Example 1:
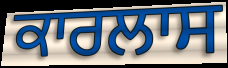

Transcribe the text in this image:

ਕਾਰਲਾਸ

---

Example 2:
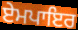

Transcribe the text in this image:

ਏਮਪਾਇਰ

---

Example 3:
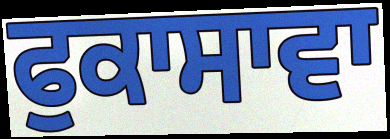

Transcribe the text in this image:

ਫੁਕਾਸਾਵਾ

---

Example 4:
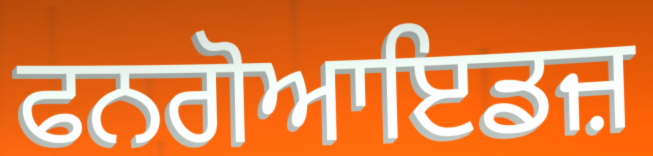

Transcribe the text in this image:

ਫਨਗੋਆਇਡਜ਼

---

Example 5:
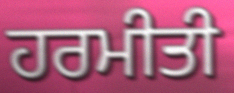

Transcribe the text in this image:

ਹਰਮੀਤੀ